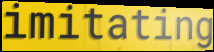
imitating